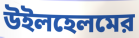
উইলহেলমের